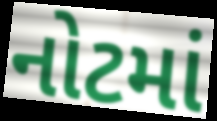
નોટમાં